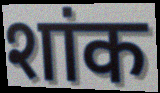
शांक